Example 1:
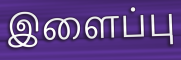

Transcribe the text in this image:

இளைப்பு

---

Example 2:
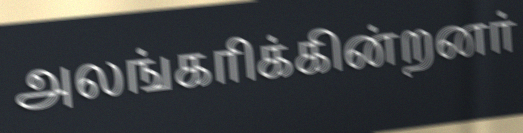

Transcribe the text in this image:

அலங்கரிக்கின்றனர்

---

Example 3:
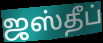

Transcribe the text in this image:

ஜஸ்தீப்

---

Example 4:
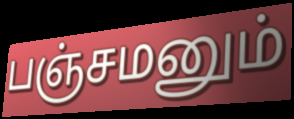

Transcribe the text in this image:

பஞ்சமனும்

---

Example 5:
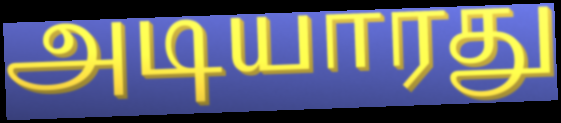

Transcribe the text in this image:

அடியாரது